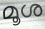
മൂശ